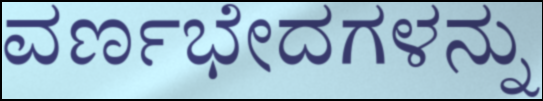
ವರ್ಣಭೇದಗಳನ್ನು